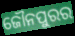
ଜୌନପୁରର